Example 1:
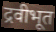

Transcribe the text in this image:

द्रवीभूत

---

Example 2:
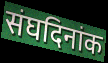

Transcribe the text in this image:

संघदिनांक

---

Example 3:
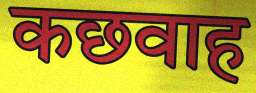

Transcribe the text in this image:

कछवाह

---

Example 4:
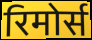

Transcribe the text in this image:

रिमोर्स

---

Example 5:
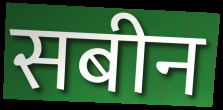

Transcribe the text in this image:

सबीन